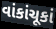
વાંકાંચૂકાં